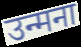
उन्मना